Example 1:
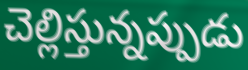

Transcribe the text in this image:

చెల్లిస్తున్నప్పుడు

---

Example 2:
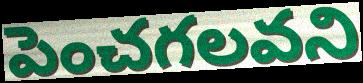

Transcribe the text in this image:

పెంచగలవని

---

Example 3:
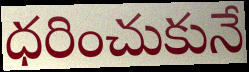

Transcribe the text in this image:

ధరించుకునే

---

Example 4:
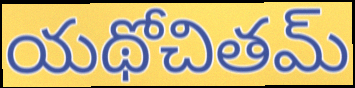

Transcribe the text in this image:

యథోచితమ్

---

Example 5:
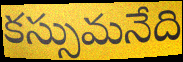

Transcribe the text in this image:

కస్సుమనేది